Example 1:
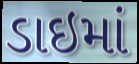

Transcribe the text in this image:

ડાઇમાં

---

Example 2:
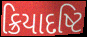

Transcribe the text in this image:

ક્રિયાદષ્ટિ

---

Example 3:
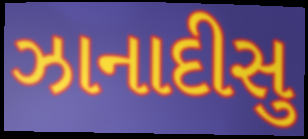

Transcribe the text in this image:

ઝાનાદીસુ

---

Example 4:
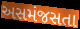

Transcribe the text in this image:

અસમંજસતા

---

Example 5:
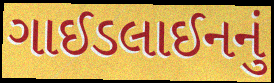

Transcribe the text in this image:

ગાઈડલાઈનનું